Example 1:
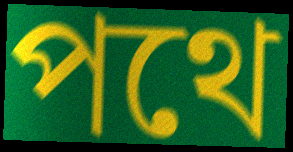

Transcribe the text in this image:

পথে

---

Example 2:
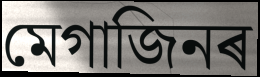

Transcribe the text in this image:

মেগাজিনৰ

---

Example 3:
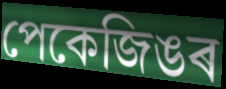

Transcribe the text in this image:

পেকেজিঙৰ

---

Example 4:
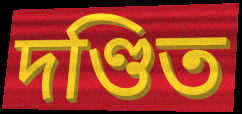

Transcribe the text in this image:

দণ্ডিত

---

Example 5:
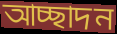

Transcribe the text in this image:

আচ্ছাদন